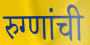
रुग्णांची